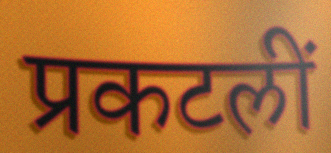
प्रकटलीं